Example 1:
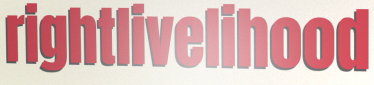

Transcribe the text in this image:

rightlivelihood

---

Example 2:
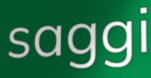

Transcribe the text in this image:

saggi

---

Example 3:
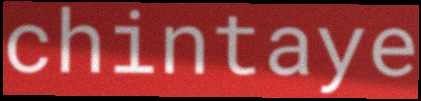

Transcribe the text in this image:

chintaye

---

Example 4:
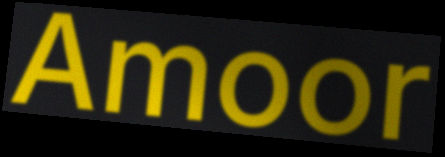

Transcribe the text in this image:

Amoor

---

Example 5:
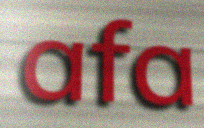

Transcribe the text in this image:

afa